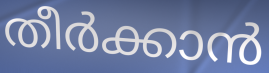
തീർക്കാൻ